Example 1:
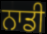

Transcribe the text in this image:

ਨਾਡੀ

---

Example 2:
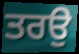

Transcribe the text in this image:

ਤਰਉ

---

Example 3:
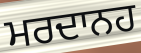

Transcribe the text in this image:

ਮਰਦਾਨਹ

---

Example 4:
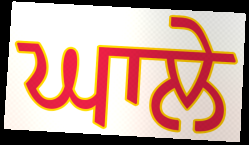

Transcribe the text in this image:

ਘਾਲੇ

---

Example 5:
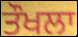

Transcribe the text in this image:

ਤੌਖਲਾ